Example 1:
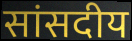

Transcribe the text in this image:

सांसदीय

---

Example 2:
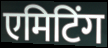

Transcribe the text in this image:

एमिटिंग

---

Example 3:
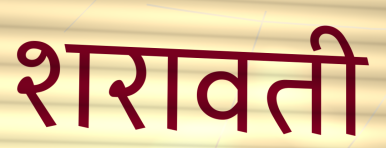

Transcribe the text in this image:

शरावती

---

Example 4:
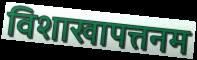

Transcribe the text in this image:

विशाखापत्तनम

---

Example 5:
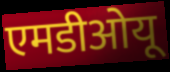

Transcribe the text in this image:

एमडीओयू